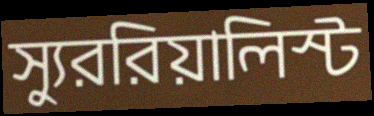
স্যুররিয়ালিস্ট